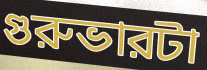
গুরুভারটা